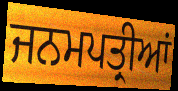
ਜਨਮਪਤ੍ਰੀਆਂ